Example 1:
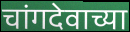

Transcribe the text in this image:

चांगदेवाच्या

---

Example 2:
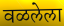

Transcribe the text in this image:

वळलेला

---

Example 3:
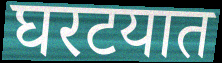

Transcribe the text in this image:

घरटयात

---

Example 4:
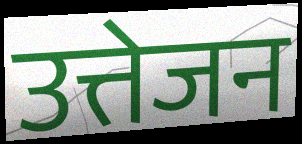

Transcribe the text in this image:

उत्तेजन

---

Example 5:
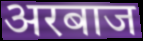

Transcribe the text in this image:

अरबाज